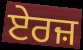
ਏਰਜ਼